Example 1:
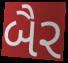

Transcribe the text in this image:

બૈર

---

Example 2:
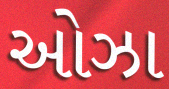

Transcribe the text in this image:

ઓઝા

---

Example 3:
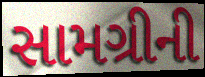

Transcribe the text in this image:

સામગ્રીની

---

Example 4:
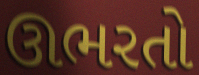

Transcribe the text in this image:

ઊભરતો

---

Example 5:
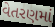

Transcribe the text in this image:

વેતરણમાં